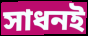
সাধনই